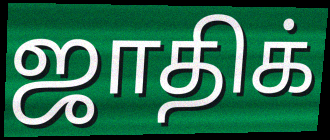
ஜாதிக்